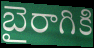
బైరాగికి